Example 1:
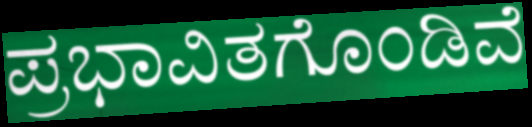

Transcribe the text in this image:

ಪ್ರಭಾವಿತಗೊಂಡಿವೆ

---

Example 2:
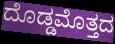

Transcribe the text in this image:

ದೊಡ್ಡಮೊತ್ತದ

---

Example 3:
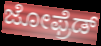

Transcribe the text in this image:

ಜೋಫ್ರೆಡ್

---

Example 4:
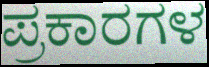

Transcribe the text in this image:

ಪ್ರಕಾರಗಳ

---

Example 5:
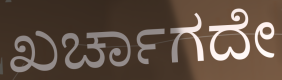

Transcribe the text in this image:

ಖರ್ಚಾಗದೇ